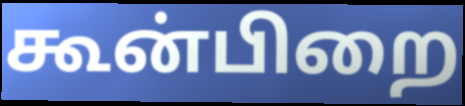
கூன்பிறை